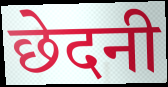
छेदनी